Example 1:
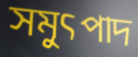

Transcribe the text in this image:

সমুৎপাদ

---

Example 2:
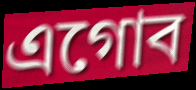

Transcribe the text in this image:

এগোব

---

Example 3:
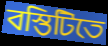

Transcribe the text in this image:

বস্তিটিতে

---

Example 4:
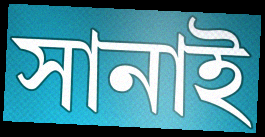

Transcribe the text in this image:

সানাই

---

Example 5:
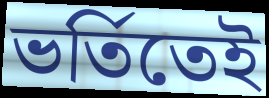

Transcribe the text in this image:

ভর্তিতেই